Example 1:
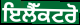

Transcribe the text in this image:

ਇਲੈੱਕਟਰੋ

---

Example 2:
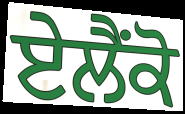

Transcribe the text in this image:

ਏਲੈਂਕੋ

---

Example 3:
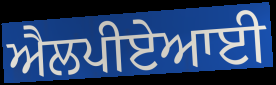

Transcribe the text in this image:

ਐਲਪੀਏਆਈ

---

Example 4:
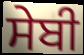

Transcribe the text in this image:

ਸੇਬੀ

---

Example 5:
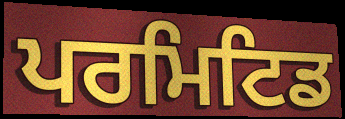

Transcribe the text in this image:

ਪਰਮਿਟਿਡ